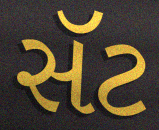
સૅટ